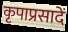
कृपाप्रसादें